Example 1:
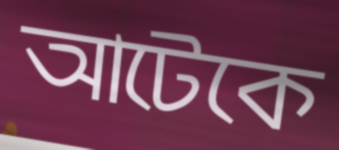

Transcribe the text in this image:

আটেকে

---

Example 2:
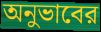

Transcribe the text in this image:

অনুভাবের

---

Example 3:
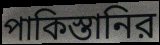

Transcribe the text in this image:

পাকিস্তানির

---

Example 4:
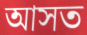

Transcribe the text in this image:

আসত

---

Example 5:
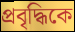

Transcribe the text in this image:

প্রবৃদ্ধিকে